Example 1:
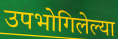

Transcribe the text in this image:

उपभोगिलेल्या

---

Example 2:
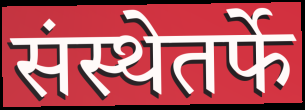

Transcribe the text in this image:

संस्थेतर्फे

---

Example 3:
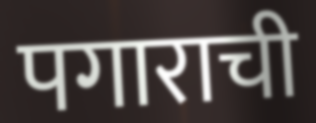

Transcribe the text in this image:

पगाराची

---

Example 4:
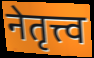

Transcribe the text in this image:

नेतृत्त्व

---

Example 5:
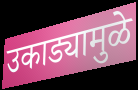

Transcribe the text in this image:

उकाड्यामुळे